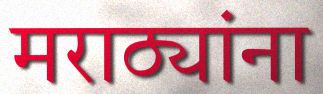
मराठ्यांना